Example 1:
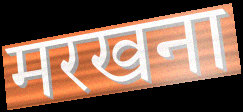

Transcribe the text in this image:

मरखना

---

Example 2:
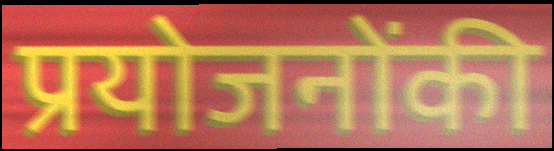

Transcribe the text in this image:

प्रयोजनोंकी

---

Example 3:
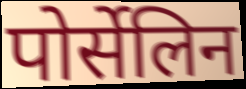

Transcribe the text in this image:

पोर्सेलिन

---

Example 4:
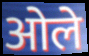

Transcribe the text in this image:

ओले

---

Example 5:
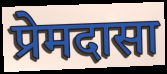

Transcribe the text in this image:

प्रेमदासा